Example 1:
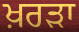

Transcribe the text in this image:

ਖ਼ਰੜਾ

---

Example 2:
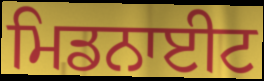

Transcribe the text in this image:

ਮਿਡਨਾਈਟ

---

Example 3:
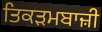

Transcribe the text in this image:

ਤਿਕੜਮਬਾਜ਼ੀ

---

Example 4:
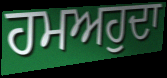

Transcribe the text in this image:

ਹਮਅਹੁਦਾ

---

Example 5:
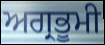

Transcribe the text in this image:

ਅਗ੍ਰਭੂਮੀ